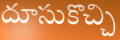
దూసుకొచ్చి